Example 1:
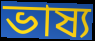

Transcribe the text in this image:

ভাষ্য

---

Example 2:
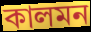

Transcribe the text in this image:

কালমন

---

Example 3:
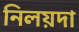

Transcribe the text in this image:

নিলয়দা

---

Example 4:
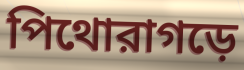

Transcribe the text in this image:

পিথোরাগড়ে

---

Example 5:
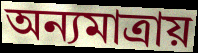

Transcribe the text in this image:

অন্যমাত্রায়